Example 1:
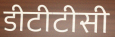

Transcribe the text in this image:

डीटीटीसी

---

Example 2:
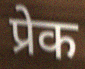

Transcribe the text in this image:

प्रेक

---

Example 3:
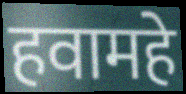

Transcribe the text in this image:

हवामहे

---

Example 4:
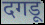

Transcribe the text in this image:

दगडू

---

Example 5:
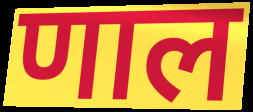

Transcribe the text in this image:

णाल